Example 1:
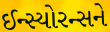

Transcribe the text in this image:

ઈન્સ્યોરન્સને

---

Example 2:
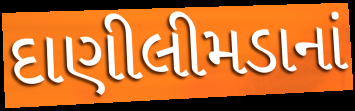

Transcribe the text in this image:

દાણીલીમડાનાં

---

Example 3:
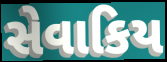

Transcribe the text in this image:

સેવાકિય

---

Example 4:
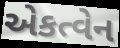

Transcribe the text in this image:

એકત્વેન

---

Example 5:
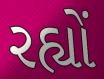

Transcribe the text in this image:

રહ્યોં